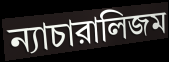
ন্যাচারালিজম